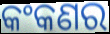
କଂକଣର